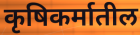
कृषिकर्मातील